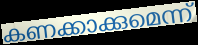
കണക്കാക്കുമെന്ന്